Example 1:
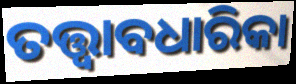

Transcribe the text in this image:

ତତ୍ତ୍ୱାବଧାରିକା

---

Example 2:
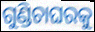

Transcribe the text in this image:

ଗୁଣ୍ଡିଚାଘରକୁ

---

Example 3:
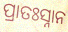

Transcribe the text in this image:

ପ୍ରାତଃସ୍ନାନ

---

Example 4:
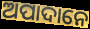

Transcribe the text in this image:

ଅପାଦାନେ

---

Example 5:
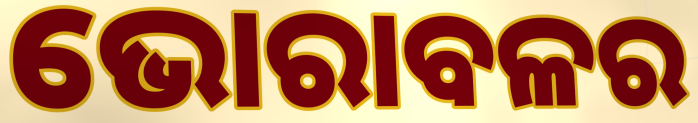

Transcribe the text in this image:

ଭୋରାବଳର